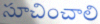
సూచించాలి